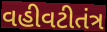
વહીવટીતંત્ર